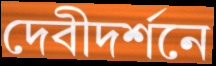
দেবীদর্শনে